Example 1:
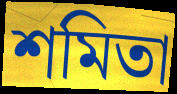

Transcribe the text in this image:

শমিতা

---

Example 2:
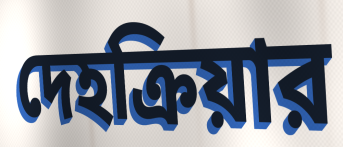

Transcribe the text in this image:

দেহক্রিয়ার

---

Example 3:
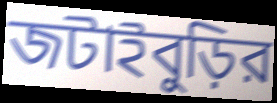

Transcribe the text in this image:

জটাইবুড়ির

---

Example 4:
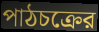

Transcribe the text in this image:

পাঠচক্রের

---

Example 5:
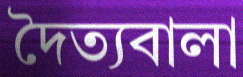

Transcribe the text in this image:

দৈত্যবালা